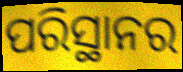
ପରିସ୍ଥାନର